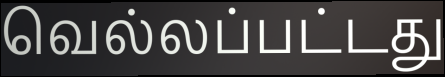
வெல்லப்பட்டது